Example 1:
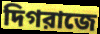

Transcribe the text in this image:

দিগরাজে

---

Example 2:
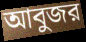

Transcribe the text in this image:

আবুজর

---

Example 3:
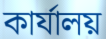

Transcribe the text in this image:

কার্যালয়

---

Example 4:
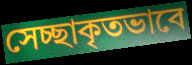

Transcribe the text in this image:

সেচ্ছাকৃতভাবে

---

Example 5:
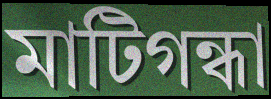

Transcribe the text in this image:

মাটিগন্ধা